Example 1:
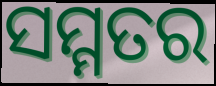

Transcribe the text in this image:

ସମ୍ମତର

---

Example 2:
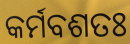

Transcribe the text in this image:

କର୍ମବଶତଃ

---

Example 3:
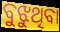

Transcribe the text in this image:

ବୁଝୁଥିବା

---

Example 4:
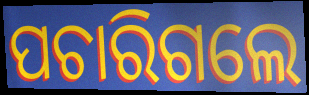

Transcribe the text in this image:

ପଚାରିଗଲେ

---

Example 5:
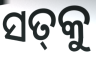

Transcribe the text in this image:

ସତ୍‌କୁ